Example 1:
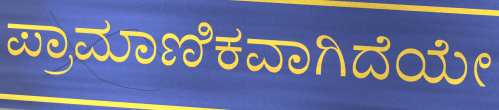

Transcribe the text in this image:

ಪ್ರಾಮಾಣಿಕವಾಗಿದೆಯೇ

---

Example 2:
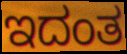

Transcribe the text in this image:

ಇದಂತ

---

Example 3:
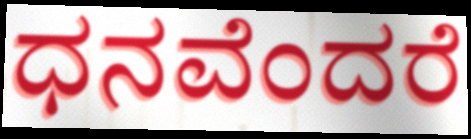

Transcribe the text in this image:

ಧನವೆಂದರೆ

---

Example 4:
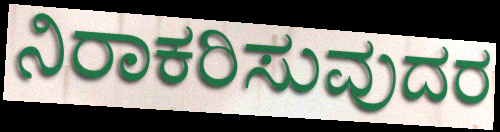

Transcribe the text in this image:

ನಿರಾಕರಿಸುವುದರ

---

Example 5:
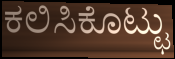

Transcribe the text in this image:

ಕಲಿಸಿಕೊಟ್ಟು